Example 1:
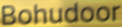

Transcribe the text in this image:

Bohudoor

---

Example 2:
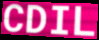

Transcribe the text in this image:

CDIL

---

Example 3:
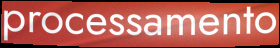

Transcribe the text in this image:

processamento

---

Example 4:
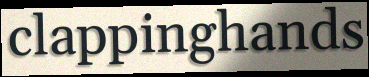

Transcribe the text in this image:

clappinghands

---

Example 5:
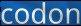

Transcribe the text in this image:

codon